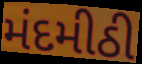
મંદમીઠી